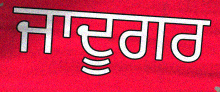
ਜਾਦੂਗਰ